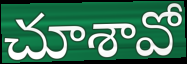
చూశావో